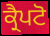
ਕ੍ਰੈਪਟੋ